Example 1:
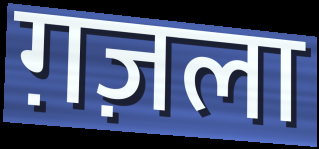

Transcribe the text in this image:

ग़ज़ला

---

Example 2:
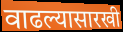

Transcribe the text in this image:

वाढल्यासारखी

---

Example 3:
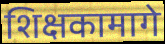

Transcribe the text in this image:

शिक्षकामागे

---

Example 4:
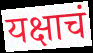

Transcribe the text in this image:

यक्षाचं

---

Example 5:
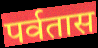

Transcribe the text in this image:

पर्वतास